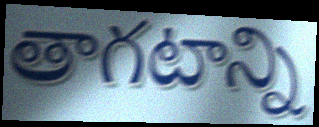
తాగటాన్ని